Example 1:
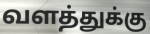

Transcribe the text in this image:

வளத்துக்கு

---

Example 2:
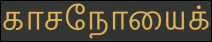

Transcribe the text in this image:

காசநோயைக்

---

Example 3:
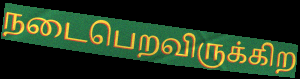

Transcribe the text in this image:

நடைபெறவிருக்கிற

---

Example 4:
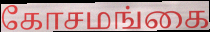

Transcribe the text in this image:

கோசமங்கை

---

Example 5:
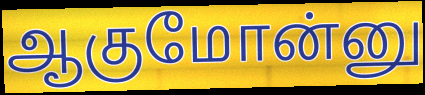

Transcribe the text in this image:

ஆகுமோன்னு